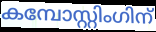
കമ്പോസ്റ്റിംഗിന്